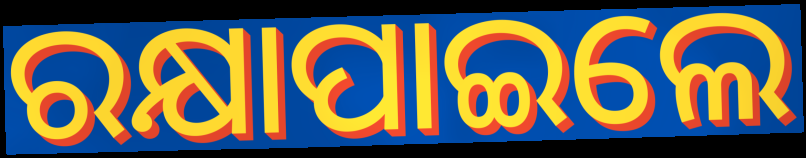
ରକ୍ଷାପାଇଲେ